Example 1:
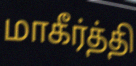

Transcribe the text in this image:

மாகீர்த்தி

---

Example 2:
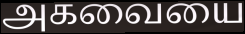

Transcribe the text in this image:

அகவையை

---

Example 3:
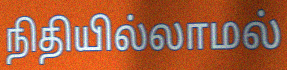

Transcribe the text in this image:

நிதியில்லாமல்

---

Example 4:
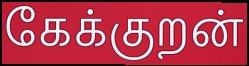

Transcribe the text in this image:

கேக்குறன்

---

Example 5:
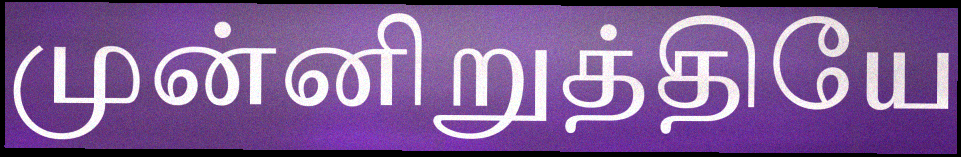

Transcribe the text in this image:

முன்னிறுத்தியே